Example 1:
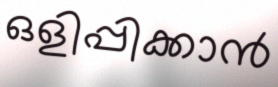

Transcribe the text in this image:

ഒളിപ്പിക്കാൻ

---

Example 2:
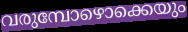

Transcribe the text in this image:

വരുമ്പോഴൊക്കെയും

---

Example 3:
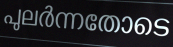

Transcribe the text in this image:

പുലർന്നതോടെ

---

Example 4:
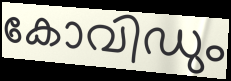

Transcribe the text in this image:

കോവിഡും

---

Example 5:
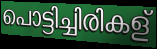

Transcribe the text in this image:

പൊട്ടിച്ചിരികള്